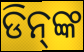
ଡିନ୍‌ଙ୍କ